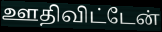
ஊதிவிட்டேன்